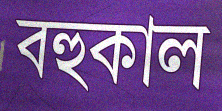
বহুকাল